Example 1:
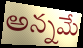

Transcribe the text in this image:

అన్నమే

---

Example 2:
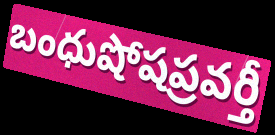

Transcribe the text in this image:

బంధుషోషప్రవర్తీ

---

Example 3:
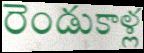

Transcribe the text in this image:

రెండుకాళ్ల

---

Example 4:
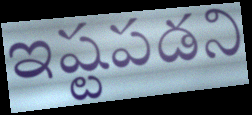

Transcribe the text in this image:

ఇష్టపడని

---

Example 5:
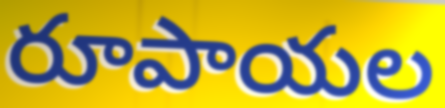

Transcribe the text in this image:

రూపాయల